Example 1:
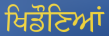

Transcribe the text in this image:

ਖਿਡੌਣਿਆਂ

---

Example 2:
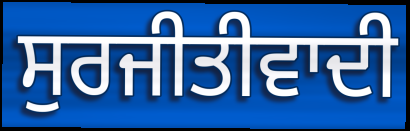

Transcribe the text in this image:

ਸੁਰਜੀਤੀਵਾਦੀ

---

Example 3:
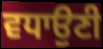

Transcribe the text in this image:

ਵਧਾਉਣੀ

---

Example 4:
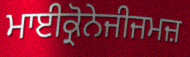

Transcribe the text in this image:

ਮਾਈਕ੍ਰੋਨੇਜੀਜਮਜ਼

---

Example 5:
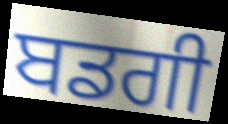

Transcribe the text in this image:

ਬਡਗੀ